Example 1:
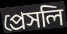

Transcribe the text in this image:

প্রেসলি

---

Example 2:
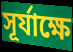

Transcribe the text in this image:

সূর্যাক্ষে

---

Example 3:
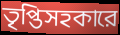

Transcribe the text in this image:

তৃপ্তিসহকারে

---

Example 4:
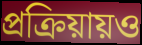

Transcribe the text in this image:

প্রক্রিয়ায়ও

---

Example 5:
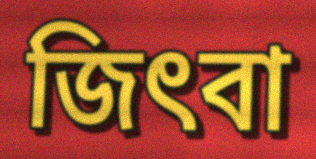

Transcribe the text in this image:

জিৎবা